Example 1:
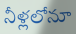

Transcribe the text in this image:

నీళ్లలోనూ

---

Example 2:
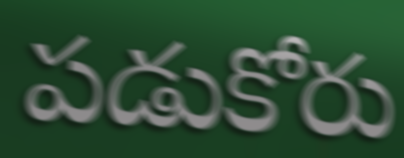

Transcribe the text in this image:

పడుకోరు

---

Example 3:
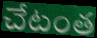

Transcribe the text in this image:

చేటంత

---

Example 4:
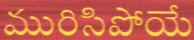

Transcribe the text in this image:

మురిసిపోయే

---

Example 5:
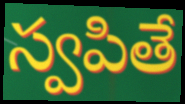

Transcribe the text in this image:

స్వపితే